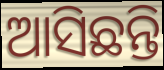
ଆସିଛନ୍ତି